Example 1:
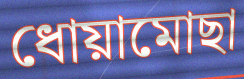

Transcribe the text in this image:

ধোয়ামোছা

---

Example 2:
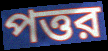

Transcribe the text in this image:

পত্তর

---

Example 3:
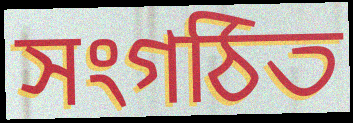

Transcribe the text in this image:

সংগঠিত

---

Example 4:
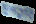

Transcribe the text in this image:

মুলতুবি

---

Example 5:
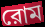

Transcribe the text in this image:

রোম